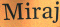
Miraj